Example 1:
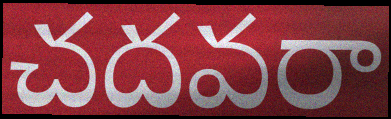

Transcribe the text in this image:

చదవరా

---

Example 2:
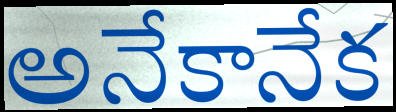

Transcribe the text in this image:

అనేకానేక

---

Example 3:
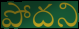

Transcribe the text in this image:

పోదని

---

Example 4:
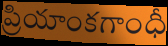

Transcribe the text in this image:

ప్రియాంకగాంధీ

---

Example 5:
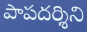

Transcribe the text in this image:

పాపదర్శిని